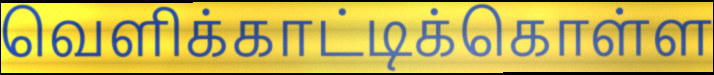
வெளிக்காட்டிக்கொள்ள